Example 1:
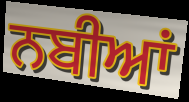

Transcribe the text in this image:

ਨਬੀਆਂ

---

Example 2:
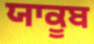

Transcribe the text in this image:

ਯਾਕੂਬ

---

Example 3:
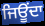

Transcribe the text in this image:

ਜਿਊਂਦਾ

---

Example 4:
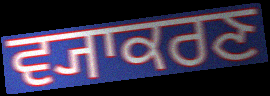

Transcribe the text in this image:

ਵ੍ਯਾਕਰਣ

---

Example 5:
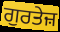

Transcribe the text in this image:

ਗੁਰਤੇਜ਼